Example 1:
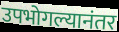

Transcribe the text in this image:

उपभोगल्यानंतर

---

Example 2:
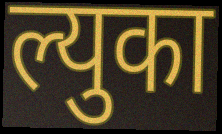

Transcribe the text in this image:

ल्युका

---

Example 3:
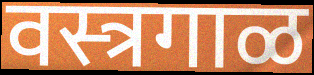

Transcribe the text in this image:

वस्त्रगाळ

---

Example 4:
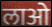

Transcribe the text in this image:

लाओ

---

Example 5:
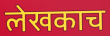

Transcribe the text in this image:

लेखकाच